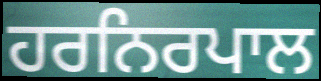
ਹਰਨਿਰਪਾਲ